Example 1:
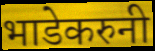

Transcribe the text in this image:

भाडेकरुनी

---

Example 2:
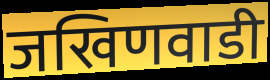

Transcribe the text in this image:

जखिणवाडी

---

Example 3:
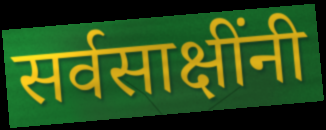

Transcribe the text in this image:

सर्वसाक्षींनी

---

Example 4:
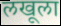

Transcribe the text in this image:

लखूला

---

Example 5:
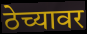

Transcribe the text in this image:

ठेच्यावर